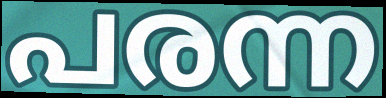
പരന്ന